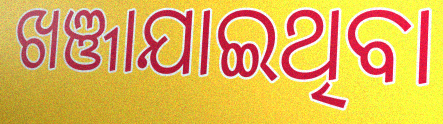
ଖଞ୍ଜାଯାଇଥିବା